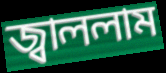
জ্বাললাম